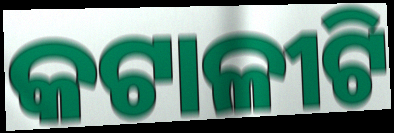
କଟାଳୀଟି